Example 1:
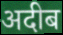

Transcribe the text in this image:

अदीब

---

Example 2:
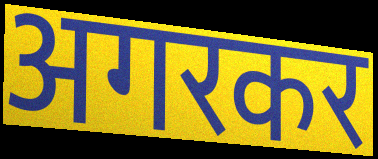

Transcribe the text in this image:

अगरकर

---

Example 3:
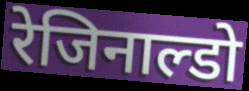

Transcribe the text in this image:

रेजिनाल्डो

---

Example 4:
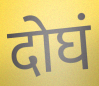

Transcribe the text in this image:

दोघं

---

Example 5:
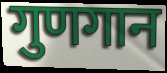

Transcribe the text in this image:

गुणगान